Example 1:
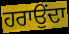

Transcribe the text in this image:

ਹਰਾਉਂਦਾ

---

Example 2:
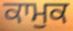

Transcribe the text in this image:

ਕਾਮੁਕ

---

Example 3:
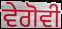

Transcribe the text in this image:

ਵੇਗੋਵੀ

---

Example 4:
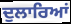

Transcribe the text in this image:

ਦੁਲਾਰਿਆਂ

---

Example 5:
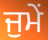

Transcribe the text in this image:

ਜੁਮੇਂ